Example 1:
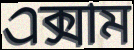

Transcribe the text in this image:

এক্সাম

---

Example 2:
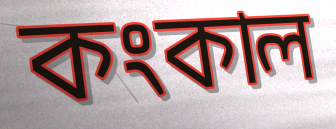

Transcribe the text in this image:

কংকাল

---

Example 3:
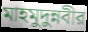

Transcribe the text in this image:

মাহমুদুন্নবীর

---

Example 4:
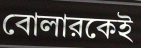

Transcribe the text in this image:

বোলারকেই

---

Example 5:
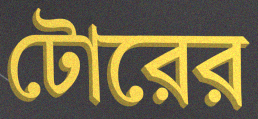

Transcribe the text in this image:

টোরের